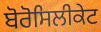
ਬੋਰੋਸਿਲੀਕੇਟ